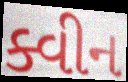
ક્વીન